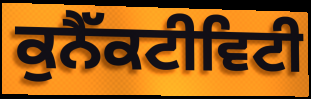
ਕੁਨੈੱਕਟੀਵਿਟੀ